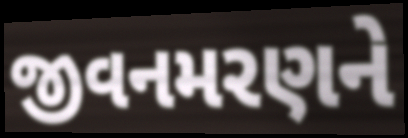
જીવનમરણને